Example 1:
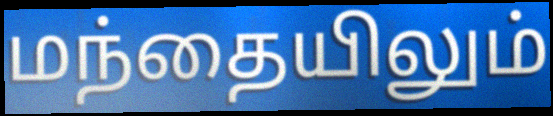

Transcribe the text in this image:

மந்தையிலும்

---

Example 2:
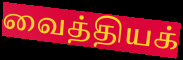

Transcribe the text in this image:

வைத்தியக்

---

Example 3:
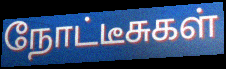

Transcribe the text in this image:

நோட்டீசுகள்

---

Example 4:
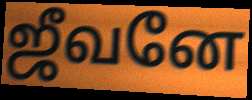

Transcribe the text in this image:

ஜீவனே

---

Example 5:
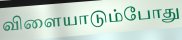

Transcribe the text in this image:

விளையாடும்போது